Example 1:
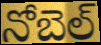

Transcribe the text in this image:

నోబెల్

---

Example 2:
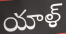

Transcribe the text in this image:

యాళ్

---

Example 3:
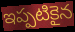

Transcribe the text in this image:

ఇప్పటికైన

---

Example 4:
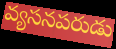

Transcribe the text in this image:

వ్యసనపరుడు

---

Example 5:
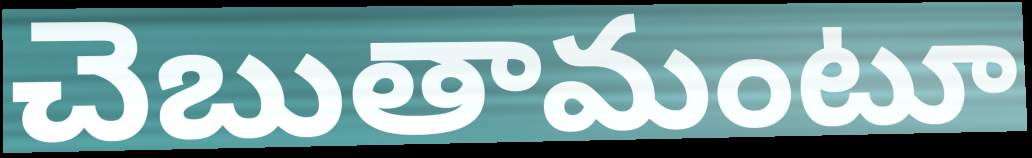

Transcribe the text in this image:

చెబుతామంటూ